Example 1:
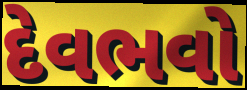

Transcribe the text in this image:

દેવભવો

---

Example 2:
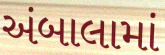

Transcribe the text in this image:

અંબાલામાં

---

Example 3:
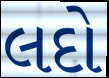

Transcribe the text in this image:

લદો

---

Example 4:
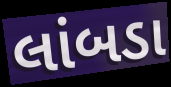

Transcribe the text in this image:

લાંબડા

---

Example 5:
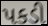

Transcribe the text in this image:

પકડી